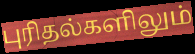
புரிதல்களிலும்